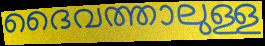
ദൈവത്താലുള്ള